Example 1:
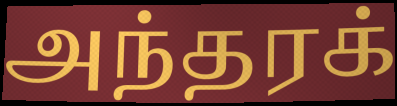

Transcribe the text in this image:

அந்தரக்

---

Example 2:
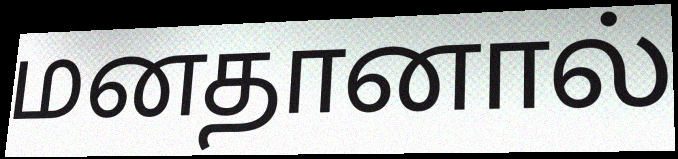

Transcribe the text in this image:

மனதானால்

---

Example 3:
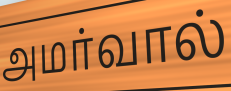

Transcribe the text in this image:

அமர்வால்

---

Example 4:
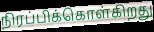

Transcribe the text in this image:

நிரப்பிக்கொள்கிறது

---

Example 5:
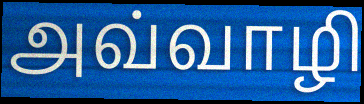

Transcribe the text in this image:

அவ்வாழி